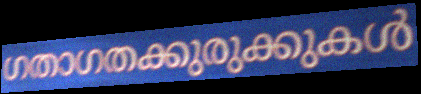
ഗതാഗതക്കുരുക്കുകൾ